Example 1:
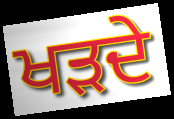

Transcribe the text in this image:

ਖੜਦੇ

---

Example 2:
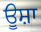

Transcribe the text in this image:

ਊਸ਼ਾ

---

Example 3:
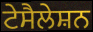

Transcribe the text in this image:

ਟੇਸੈਲੇਸ਼ਨ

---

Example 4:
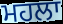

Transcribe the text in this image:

ਮਹਲਾ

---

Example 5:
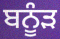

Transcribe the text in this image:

ਬਨੂੰੜ